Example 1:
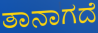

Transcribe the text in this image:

ತಾನಾಗದೆ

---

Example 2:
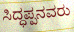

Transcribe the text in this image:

ಸಿದ್ಧಪ್ಪನವರು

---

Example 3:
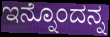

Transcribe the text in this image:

ಇನ್ನೊಂದನ್ನ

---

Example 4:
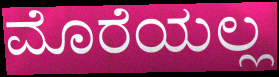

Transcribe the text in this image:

ಮೊರೆಯಲ್ಲ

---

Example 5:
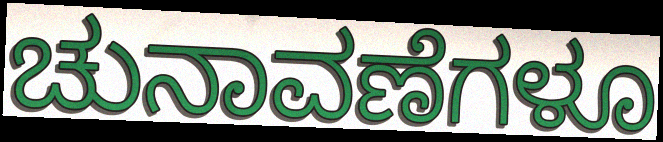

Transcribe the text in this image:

ಚುನಾವಣೆಗಳೂ